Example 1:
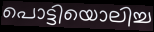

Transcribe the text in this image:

പൊട്ടിയൊലിച്ച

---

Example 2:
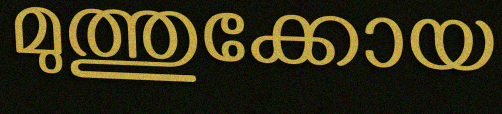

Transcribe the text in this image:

മുത്തുക്കോയ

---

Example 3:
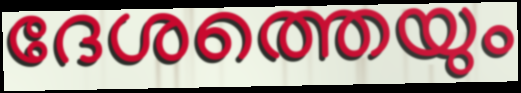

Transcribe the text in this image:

ദേശത്തെയും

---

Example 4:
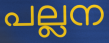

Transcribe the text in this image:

പല്ലന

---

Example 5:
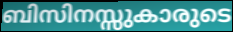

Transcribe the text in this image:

ബിസിനസ്സുകാരുടെ